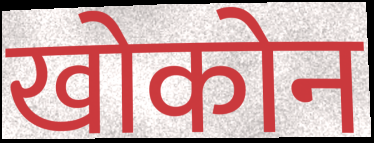
खोकोन